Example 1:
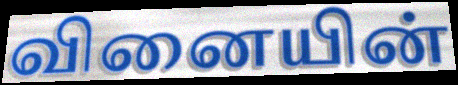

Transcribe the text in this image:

வினையின்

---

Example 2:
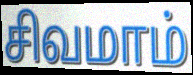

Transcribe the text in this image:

சிவமாம்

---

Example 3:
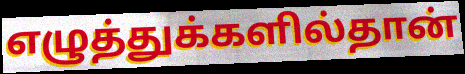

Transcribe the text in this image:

எழுத்துக்களில்தான்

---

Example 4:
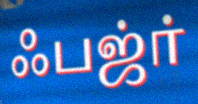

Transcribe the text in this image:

ஃபஜ்ர்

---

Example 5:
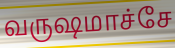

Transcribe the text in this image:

வருஷமாச்சே